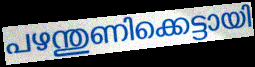
പഴന്തുണിക്കെട്ടായി